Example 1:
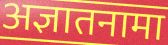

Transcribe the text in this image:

अज्ञातनामा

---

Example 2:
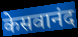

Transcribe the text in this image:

केसवानंद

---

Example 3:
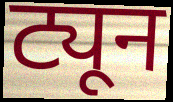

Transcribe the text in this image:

ट्यून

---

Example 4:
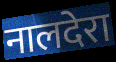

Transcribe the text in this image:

नालदेरा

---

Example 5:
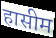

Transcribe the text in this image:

हासीम